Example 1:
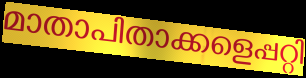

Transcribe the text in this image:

മാതാപിതാക്കളെപ്പറ്റി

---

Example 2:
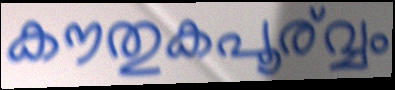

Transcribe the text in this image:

കൗതുകപൂര്വ്വം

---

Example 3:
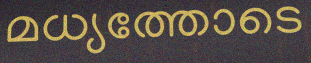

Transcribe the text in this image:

മധ്യത്തോടെ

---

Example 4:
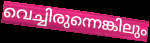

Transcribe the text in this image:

വെച്ചിരുന്നെങ്കിലും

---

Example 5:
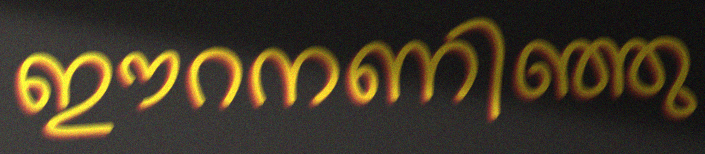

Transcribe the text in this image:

ഈറനണിഞ്ഞു